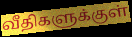
வீதிகளுக்குள்